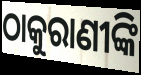
ଠାକୁରାଣୀଙ୍କି